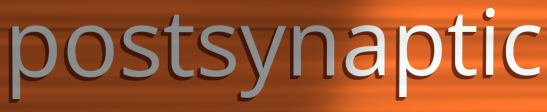
postsynaptic